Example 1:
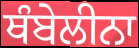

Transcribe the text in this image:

ਥੰਬੇਲੀਨਾ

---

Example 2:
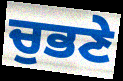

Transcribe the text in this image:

ਚੁਭਣੇ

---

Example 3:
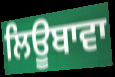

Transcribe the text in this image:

ਲਿਊਬਾਵਾ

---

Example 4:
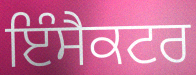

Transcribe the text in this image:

ਇੰਸੈਕਟਰ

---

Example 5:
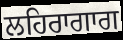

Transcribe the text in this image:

ਲਹਿਰਾਗਾਗ